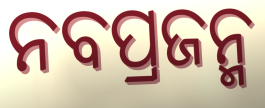
ନବପ୍ରଜନ୍ମ